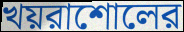
খয়রাশোলের